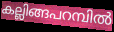
കല്ലിങ്ങപറമ്പിൽ